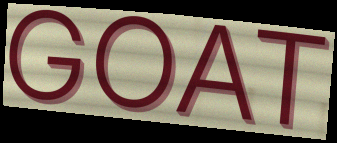
GOAT